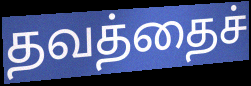
தவத்தைச்